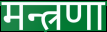
मन्त्रणा